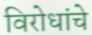
विरोधांचे